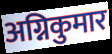
अग्निकुमार